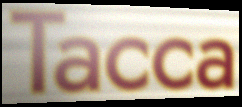
Tacca